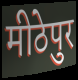
मीठेपुर